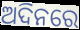
ଅଦିନରେ